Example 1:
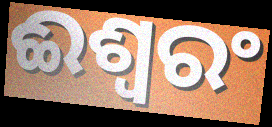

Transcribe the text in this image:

ଈଶ୍ଵରଂ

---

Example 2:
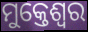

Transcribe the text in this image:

ମୁକ୍ତେଶ୍ଵର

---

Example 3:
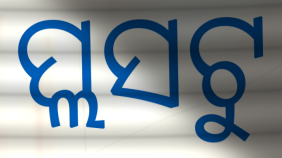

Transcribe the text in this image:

ପ୍ଲସଟୁ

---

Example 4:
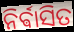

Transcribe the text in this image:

ନିର୍ଵାସିତ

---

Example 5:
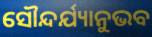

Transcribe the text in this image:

ସୌନ୍ଦର୍ଯ୍ୟାନୁଭବ